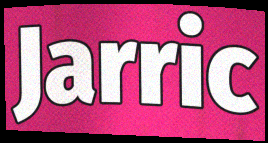
Jarric